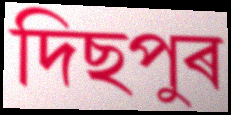
দিছপুৰ